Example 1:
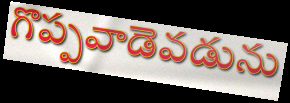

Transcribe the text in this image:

గొప్పవాడెవడును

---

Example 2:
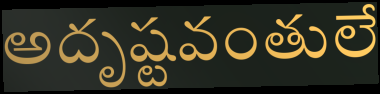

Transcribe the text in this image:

అదృష్టవంతులే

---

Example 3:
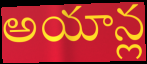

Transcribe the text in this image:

అయాన్ల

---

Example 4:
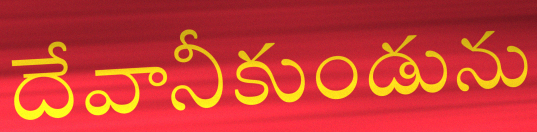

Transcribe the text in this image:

దేవానీకుండును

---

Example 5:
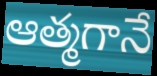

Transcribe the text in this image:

ఆత్మగానే